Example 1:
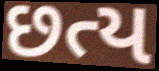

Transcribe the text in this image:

છત્ય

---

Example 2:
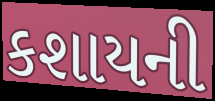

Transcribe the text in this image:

કશાયની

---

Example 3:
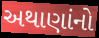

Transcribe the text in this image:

અથાણાંનો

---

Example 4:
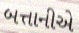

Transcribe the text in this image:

બત્તાનીએ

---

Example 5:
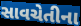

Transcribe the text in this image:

સાવચેતીના